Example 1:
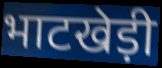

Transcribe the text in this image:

भाटखेड़ी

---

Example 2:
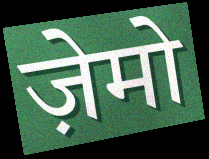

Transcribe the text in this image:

ज़ेमो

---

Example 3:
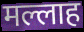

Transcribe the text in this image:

मल्लाह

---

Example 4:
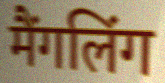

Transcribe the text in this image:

मैंगलिंग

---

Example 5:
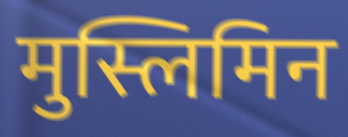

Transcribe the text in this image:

मुस्लिमिन